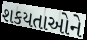
શકયતાઓને